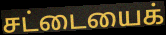
சட்டையைக்